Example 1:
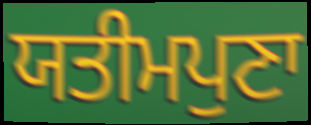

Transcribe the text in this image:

ਯਤੀਮਪੁਣਾ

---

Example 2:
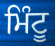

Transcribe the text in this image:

ਮਿੰਟੂ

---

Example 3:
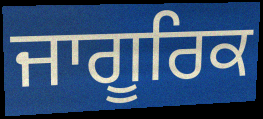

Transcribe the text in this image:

ਜਾਗੂਰਿਕ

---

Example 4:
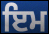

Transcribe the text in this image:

ਇਮ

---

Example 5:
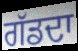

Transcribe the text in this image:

ਗੱਡਦਾ